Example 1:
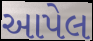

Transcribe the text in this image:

આપેલ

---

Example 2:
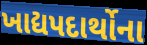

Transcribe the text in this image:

ખાદ્યપદાર્થોના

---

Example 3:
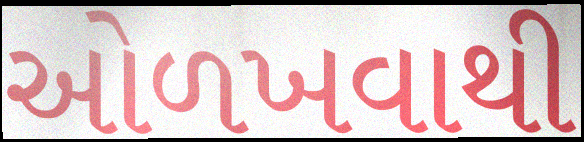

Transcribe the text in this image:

ઓળખવાથી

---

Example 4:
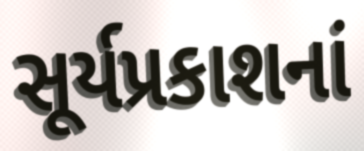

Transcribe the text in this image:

સૂર્યપ્રકાશનાં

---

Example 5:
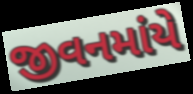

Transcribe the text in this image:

જીવનમાંયે